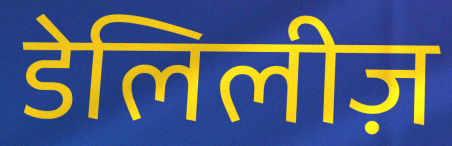
डेलिलीज़